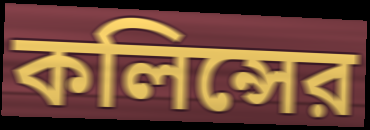
কলিন্সের